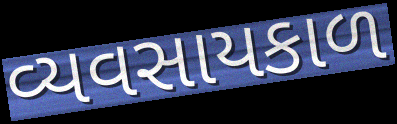
વ્યવસાયકાળ